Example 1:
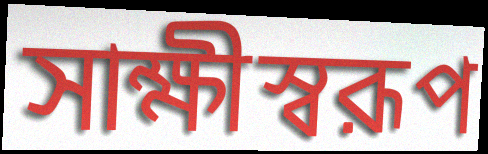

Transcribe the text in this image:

সাক্ষীস্বরূপ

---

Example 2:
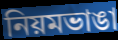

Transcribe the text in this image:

নিয়মভাঙা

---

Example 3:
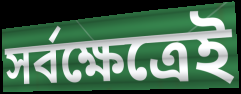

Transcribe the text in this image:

সর্বক্ষেত্রেই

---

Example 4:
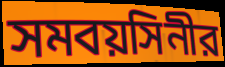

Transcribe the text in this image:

সমবয়সিনীর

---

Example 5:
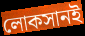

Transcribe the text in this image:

লোকসানই